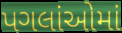
પગલાંઓમાં